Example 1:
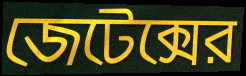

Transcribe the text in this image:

জেটেক্সের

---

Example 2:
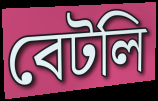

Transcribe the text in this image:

বেটলি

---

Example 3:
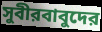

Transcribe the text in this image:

সুবীরবাবুদের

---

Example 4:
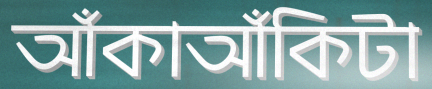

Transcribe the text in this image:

আঁকাআঁকিটা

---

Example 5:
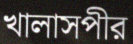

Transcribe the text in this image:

খালাসপীর